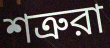
শত্রুরা